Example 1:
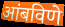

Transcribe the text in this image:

आंबविणे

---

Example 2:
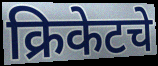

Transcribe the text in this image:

क्रिकेटचे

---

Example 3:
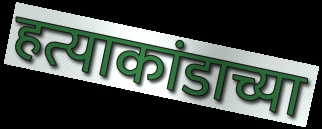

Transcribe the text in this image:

हत्याकांडाच्या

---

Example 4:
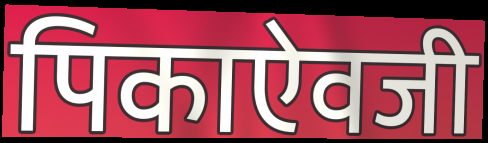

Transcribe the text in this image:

पिकाऐवजी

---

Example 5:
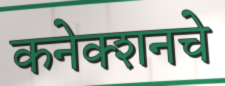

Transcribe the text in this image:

कनेक्शनचे